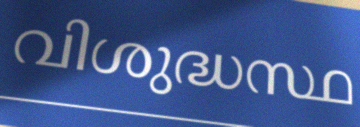
വിശുദ്ധസ്ഥ